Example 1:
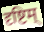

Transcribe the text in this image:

दृष्टिम्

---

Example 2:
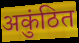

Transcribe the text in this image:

अकुंठित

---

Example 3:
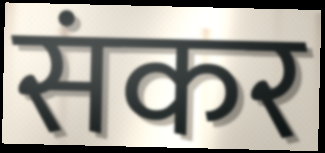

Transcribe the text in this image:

संकर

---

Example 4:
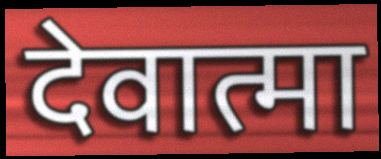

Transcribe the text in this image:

देवात्मा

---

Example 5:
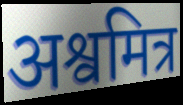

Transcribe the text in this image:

अश्वमित्र